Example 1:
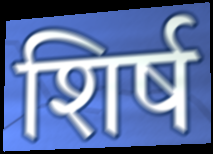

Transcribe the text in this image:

शिर्ष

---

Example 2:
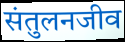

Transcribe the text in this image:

संतुलनजीव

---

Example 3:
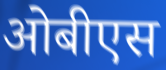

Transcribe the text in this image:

ओबीएस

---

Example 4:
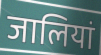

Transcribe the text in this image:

जालियां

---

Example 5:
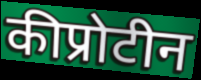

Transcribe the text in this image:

कीप्रोटीन